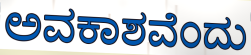
ಅವಕಾಶವೆಂದು